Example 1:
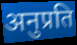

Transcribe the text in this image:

अनुप्रति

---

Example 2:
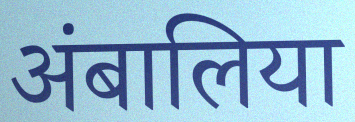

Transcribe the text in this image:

अंबालिया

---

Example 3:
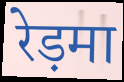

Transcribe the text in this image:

रेड़मा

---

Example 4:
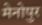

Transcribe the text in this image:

मेनोपुर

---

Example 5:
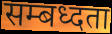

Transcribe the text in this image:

सम्बध्दता